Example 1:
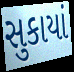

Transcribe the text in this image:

સુકાયાં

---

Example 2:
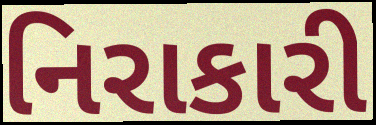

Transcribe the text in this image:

નિરાકારી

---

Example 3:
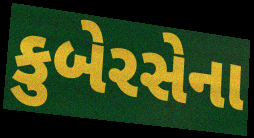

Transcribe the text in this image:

કુબેરસેના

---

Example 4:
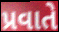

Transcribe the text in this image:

પ્રવાતે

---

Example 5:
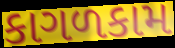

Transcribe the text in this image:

કાગળકામ